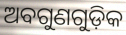
ଅବଗୁଣଗୁଡ଼ିକ